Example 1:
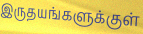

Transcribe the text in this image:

இருதயங்களுக்குள்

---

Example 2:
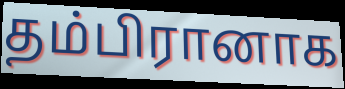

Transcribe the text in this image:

தம்பிரானாக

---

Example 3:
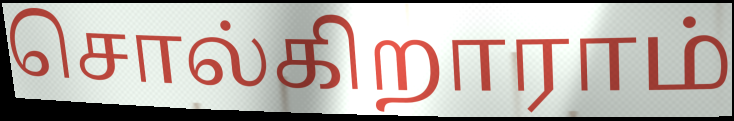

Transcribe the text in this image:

சொல்கிறாராம்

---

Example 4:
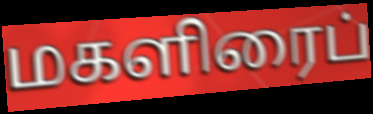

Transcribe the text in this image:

மகளிரைப்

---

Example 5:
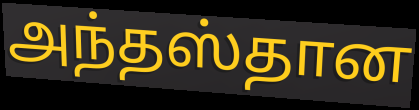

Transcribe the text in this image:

அந்தஸ்தான